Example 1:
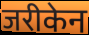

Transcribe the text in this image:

जरीकेन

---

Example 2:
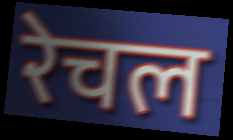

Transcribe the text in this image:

रेचल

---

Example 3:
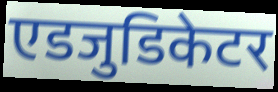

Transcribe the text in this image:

एडजुडिकेटर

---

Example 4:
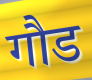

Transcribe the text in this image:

गौड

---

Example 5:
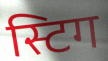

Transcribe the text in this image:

स्टिग